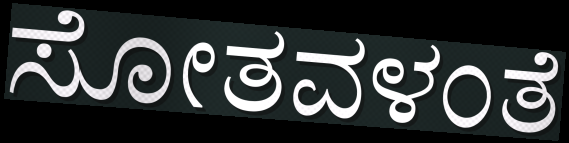
ಸೋತವಳಂತೆ